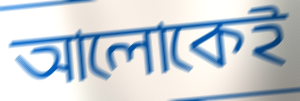
আলোকেই